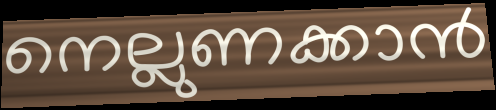
നെല്ലുണക്കാൻ